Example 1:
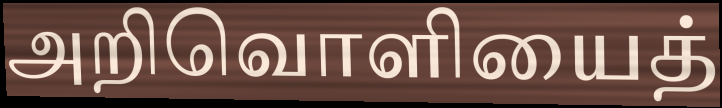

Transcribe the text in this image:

அறிவொளியைத்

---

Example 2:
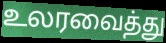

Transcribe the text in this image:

உலரவைத்து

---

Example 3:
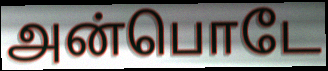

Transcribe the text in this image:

அன்பொடே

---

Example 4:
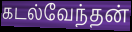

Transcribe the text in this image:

கடல்வேந்தன்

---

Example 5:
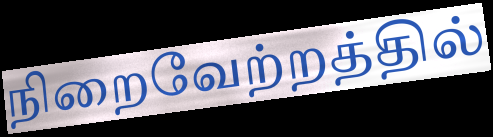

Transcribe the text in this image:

நிறைவேற்றத்தில்